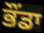
ਭੌਂਡਾ